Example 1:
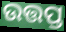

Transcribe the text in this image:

ଉତ୍ତପ୍ତ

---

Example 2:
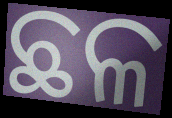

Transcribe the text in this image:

ଛଳ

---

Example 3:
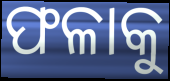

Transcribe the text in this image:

ଫଳାକୁ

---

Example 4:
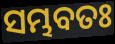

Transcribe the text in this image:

ସମ୍ଭବତଃ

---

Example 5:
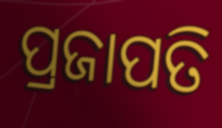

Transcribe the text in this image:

ପ୍ରଜାପତି